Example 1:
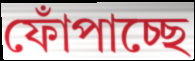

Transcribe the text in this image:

ফোঁপাচ্ছে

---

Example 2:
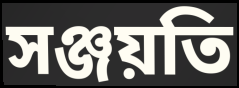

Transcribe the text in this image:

সঞ্জয়তি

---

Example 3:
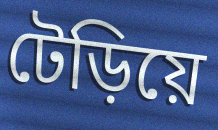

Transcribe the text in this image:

টেড়িয়ে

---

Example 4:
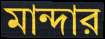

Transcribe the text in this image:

মান্দার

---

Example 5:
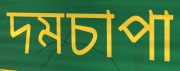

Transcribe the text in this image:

দমচাপা